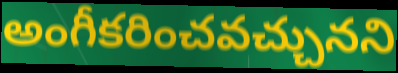
అంగీకరించవచ్చునని